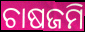
ଚାଷଜମି